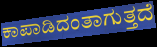
ಕಾಪಾಡಿದಂತಾಗುತ್ತದೆ